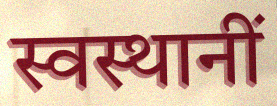
स्वस्थानीं